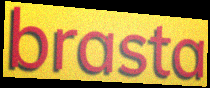
brasta